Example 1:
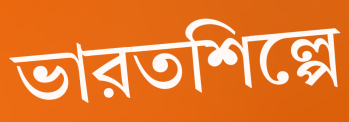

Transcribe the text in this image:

ভারতশিল্পে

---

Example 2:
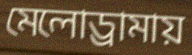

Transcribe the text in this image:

মেলোড্রামায়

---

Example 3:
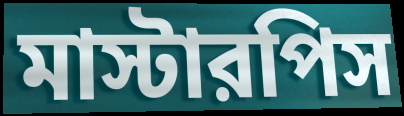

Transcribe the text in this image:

মাস্টারপিস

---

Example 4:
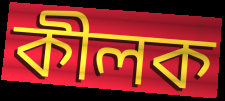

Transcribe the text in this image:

কীলক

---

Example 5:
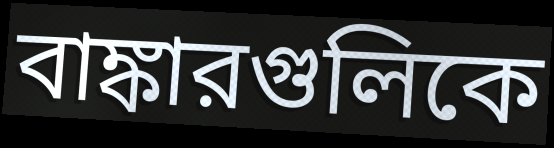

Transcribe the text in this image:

বাঙ্কারগুলিকে